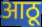
आठू